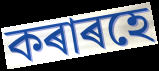
কৰাৰহে